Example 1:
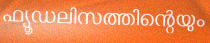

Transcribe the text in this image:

ഫ്യൂഡലിസത്തിന്റെയും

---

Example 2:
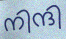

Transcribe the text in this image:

നിന്ദി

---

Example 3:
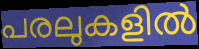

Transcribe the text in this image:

പരലുകളിൽ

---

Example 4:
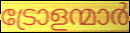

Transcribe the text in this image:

ട്രോളന്മാർ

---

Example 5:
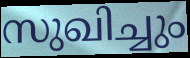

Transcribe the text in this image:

സുഖിച്ചും